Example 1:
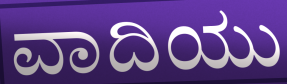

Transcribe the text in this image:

ವಾದಿಯು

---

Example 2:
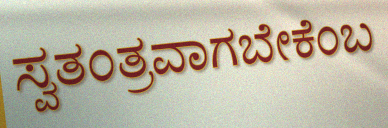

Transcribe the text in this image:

ಸ್ವತಂತ್ರವಾಗಬೇಕೆಂಬ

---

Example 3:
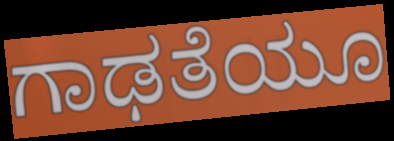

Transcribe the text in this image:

ಗಾಢತೆಯೂ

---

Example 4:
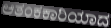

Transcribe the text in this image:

ಆತಂಕಕಾರಿಯಾದ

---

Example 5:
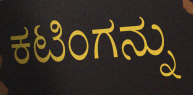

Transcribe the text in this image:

ಕಟಿಂಗನ್ನು